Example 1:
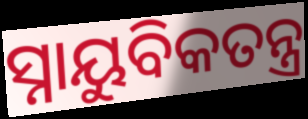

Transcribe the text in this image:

ସ୍ନାୟୁବିକତନ୍ତ୍ର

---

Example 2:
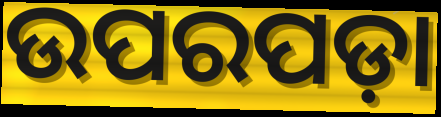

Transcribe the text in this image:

ଉପରପଡ଼ା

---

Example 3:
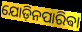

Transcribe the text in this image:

ଯୋଡ଼ିନପାରିଵା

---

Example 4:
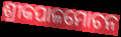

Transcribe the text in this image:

ଶ୍ରୀକପାଳମୋଚନ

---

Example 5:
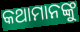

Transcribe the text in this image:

କଥାମାନଙ୍କୁ